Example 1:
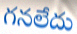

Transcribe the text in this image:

గనలేదు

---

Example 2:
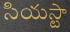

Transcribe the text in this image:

సియస్టా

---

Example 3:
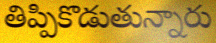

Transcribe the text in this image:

తిప్పికొడుతున్నారు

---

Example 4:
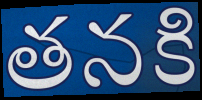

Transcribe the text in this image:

తనకి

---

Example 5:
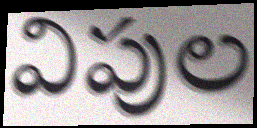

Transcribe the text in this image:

విపుల